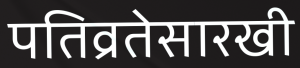
पतिव्रतेसारखी